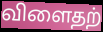
விளைதற்